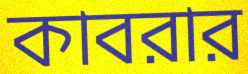
কাবরার